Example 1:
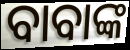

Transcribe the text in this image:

ବାବାଙ୍କ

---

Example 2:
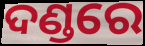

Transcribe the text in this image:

ଦଣ୍ଡରେ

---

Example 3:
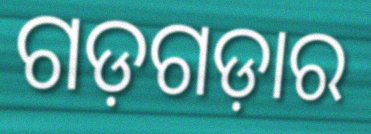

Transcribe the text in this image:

ଗଡ଼ଗଡ଼ାର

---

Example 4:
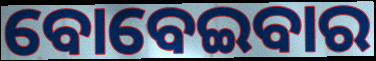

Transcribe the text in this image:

ବୋବେଇବାର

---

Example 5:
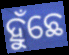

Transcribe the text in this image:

ହୁଁଛେ